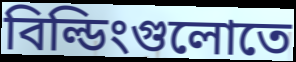
বিল্ডিংগুলোতে